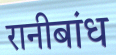
रानीबांध